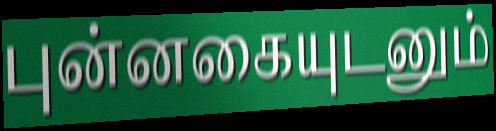
புன்னகையுடனும்